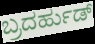
ಬ್ರದರ್ಹುಡ್